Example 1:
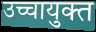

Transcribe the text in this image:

उच्‍चायुक्‍त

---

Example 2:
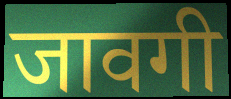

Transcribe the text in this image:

जावगी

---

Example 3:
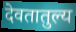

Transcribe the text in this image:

देवतातुल्य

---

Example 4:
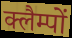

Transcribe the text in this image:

क्लैम्पों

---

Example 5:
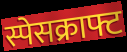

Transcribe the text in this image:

स्‍पेसक्राफ्ट